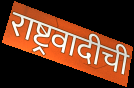
राष्ट्रवादीची